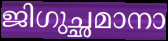
ജിഗുച്ഛമാനാ